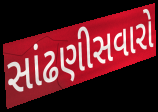
સાંઢણીસવારો